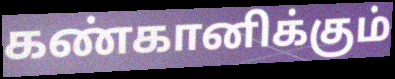
கண்கானிக்கும்